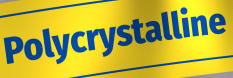
Polycrystalline